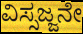
ವಿಸ್ಸಜ್ಜನೇ